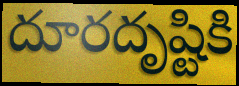
దూరదృష్టికి